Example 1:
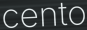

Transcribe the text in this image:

cento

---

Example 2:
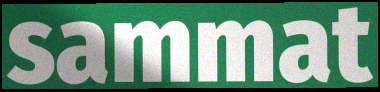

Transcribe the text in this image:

sammat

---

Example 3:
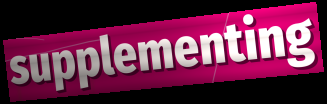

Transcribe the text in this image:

supplementing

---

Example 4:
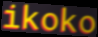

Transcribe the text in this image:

ikoko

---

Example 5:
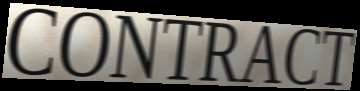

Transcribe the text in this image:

CONTRACT